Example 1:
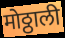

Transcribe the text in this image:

मोठ्ठाली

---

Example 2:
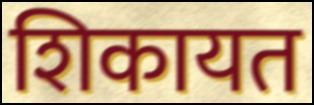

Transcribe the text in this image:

शिकायत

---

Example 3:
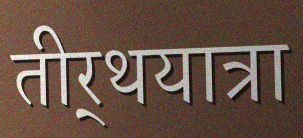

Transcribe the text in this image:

तीर्थयात्रा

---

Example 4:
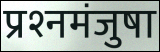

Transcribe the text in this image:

प्रश्नमंजुषा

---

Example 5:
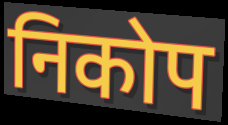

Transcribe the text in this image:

निकोप